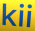
kii